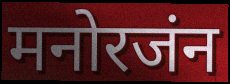
मनोरजंन